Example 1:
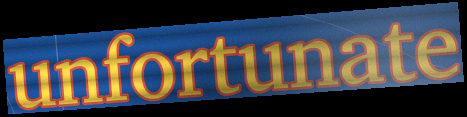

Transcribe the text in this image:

unfortunate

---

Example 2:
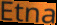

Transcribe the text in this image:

Etna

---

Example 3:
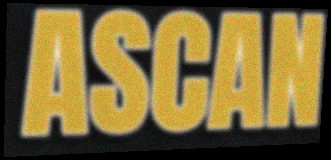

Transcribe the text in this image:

ASCAN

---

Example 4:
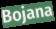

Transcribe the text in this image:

Bojana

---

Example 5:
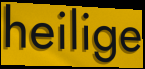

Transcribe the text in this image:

heilige